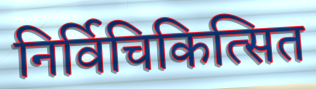
निर्विचिकित्सित